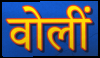
वोलीं